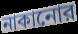
নাকানোর